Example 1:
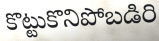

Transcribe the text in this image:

కొట్టుకొనిపోబడిరి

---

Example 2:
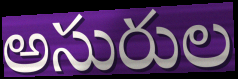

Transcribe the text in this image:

అసురుల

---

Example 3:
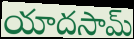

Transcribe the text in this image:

యాదసామ్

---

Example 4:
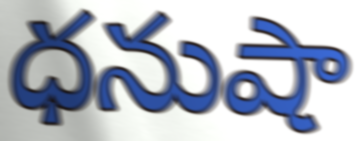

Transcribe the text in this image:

ధనుషా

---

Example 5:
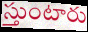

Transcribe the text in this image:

స్తుంటారు